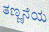
ತಣ್ಣನೆಯ